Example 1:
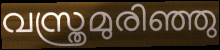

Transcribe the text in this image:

വസ്ത്രമുരിഞ്ഞു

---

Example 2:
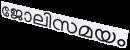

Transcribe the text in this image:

ജോലിസമയം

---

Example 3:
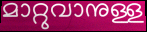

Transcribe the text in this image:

മാറ്റുവാനുള്ള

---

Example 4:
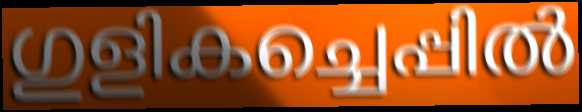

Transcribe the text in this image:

ഗുളികച്ചെപ്പിൽ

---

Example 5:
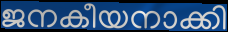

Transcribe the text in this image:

ജനകീയനാക്കി